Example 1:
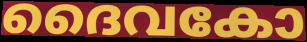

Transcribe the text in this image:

ദൈവകോ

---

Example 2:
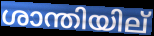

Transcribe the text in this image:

ശാന്തിയില്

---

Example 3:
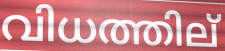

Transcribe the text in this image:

വിധത്തില്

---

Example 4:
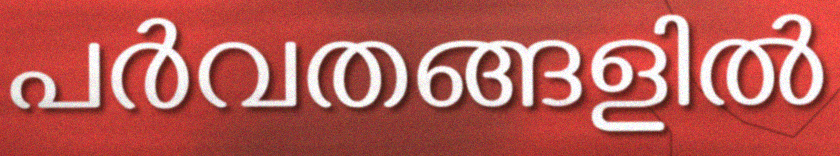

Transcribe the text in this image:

പർവതങ്ങളിൽ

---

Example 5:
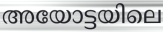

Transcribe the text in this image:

അയോട്ടയിലെ